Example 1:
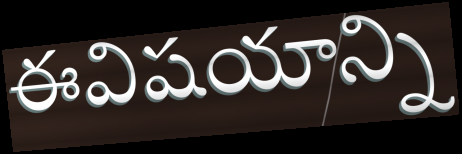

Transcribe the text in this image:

ఈవిషయాన్ని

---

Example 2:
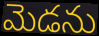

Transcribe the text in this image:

మెడను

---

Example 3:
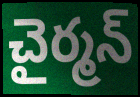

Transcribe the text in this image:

చైర్మన్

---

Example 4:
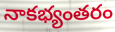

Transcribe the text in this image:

నాకభ్యంతరం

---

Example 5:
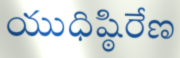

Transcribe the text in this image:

యుధిష్ఠిరేణ